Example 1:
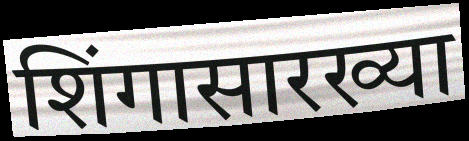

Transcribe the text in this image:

शिंगासारख्या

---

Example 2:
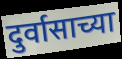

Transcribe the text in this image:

दुर्वासाच्या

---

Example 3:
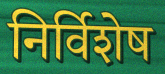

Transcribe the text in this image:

निर्विशेष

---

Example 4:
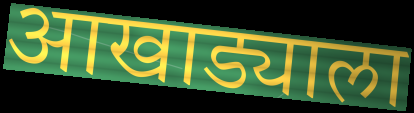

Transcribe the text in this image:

आखाड्याला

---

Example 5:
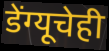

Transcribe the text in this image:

डेंग्यूचेही